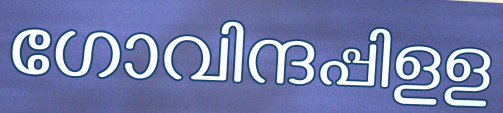
ഗോവിന്ദപ്പിളള